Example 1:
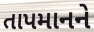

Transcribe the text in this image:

તાપમાનને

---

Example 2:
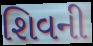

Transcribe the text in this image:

શિવની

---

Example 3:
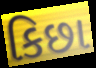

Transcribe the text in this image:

કિછા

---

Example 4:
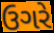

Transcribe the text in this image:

ઉગરે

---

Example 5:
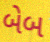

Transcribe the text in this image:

બેબ